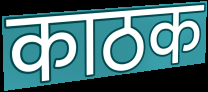
काठक